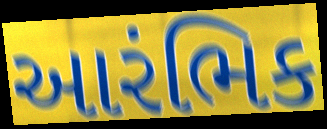
આરંભિક